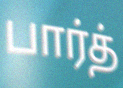
பார்த்